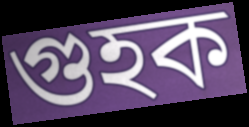
গুহক